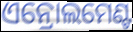
ଏନ୍ରୋଲମେଣ୍ଟ